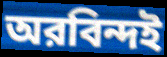
অরবিন্দই